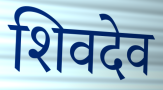
शिवदेव